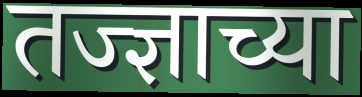
तज्ज्ञाच्या